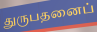
துருபதனைப்